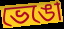
ভেঙো